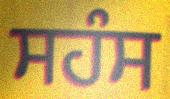
ਸਹੰਸ